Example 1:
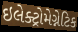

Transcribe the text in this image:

ઇલેક્ટ્રોમેગ્નેટિક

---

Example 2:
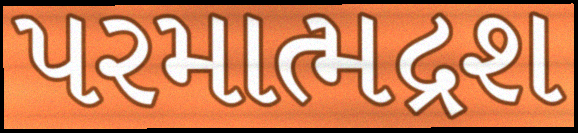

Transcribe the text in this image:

પરમાત્મદ્રશ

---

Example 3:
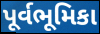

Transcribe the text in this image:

પૂર્વભૂમિકા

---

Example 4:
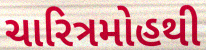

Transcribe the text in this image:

ચારિત્રમોહથી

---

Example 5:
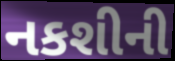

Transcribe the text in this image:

નકશીની